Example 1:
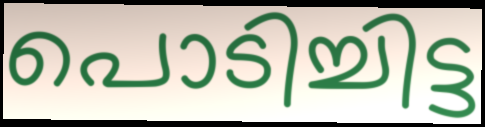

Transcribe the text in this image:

പൊടിച്ചിട്ട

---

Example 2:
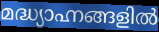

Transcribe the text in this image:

മദ്ധ്യാഹ്നങ്ങളിൽ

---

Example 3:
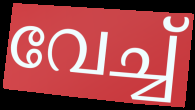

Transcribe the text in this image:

വേച്ച്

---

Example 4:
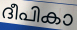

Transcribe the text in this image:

ദീപികാ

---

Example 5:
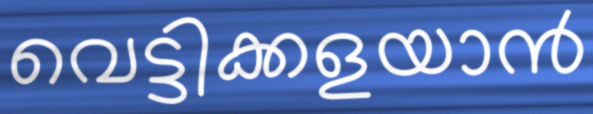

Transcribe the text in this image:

വെട്ടിക്കളയാൻ